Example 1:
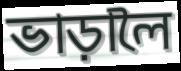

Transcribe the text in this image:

ভাড়ালৈ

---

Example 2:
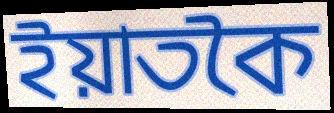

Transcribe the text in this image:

ইয়াতকৈ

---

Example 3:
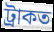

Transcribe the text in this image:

ট্ৰাকত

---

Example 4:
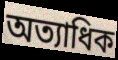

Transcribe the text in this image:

অত্যাধিক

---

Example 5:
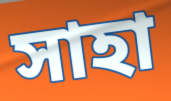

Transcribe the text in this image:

সাহা